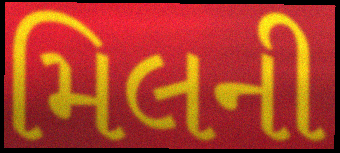
મિલની